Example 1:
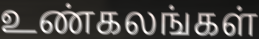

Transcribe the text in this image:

உண்கலங்கள்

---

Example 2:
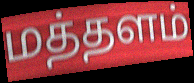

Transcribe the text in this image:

மத்தளம்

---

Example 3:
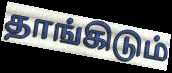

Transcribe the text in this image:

தாங்கிடும்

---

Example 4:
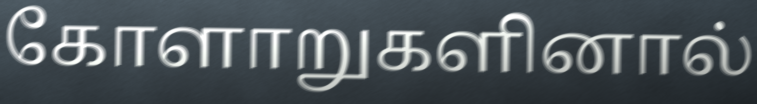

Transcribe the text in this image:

கோளாறுகளினால்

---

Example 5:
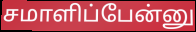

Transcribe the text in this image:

சமாளிப்பேன்னு